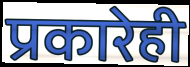
प्रकारेही